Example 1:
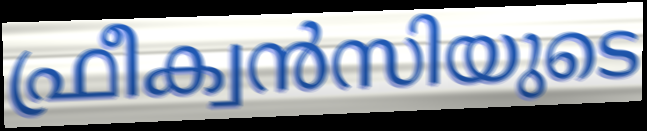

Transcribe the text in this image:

ഫ്രീക്വൻസിയുടെ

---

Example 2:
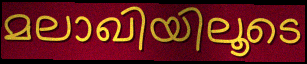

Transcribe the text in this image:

മലാഖിയിലൂടെ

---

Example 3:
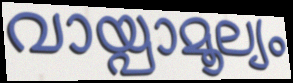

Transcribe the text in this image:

വായ്പാമൂല്യം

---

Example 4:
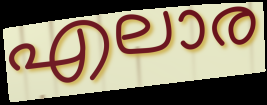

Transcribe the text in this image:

എലാര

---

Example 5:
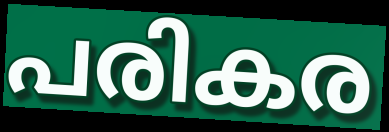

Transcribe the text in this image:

പരികര